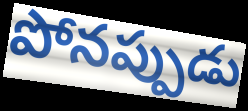
పోనప్పుడు